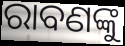
ରାବଣଙ୍କୁ